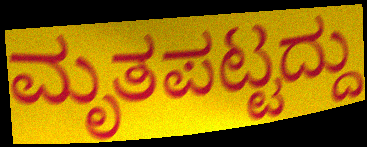
ಮೃತಪಟ್ಟದ್ದು